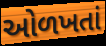
ઓળખતાં